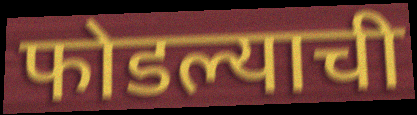
फोडल्याची